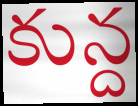
కున్ద